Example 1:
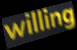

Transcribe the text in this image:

willing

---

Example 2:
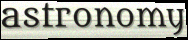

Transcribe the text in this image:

astronomy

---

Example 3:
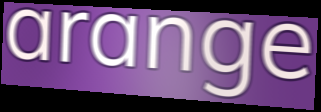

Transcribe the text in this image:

arange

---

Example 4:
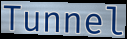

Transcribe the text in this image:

Tunnel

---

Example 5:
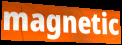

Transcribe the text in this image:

magnetic